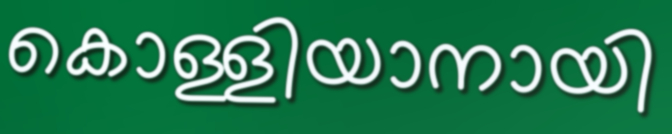
കൊള്ളിയാനായി